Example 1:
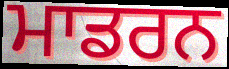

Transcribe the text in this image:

ਮਾਡਰਨ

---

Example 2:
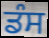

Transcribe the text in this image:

ਡੰਸ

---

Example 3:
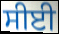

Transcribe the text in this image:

ਸੀਈ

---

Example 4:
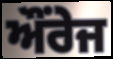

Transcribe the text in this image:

ਔਂਰੇਜ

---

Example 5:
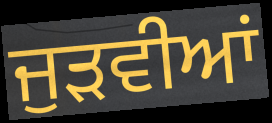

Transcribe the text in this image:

ਜੁੜਵੀਆਂ